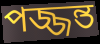
পজ্জন্ত